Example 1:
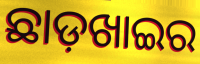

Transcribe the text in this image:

ଛାଡ଼ଖାଇର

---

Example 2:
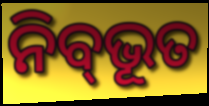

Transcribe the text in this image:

ନିବ୍‌ଭୂତ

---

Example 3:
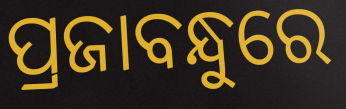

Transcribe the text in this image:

ପ୍ରଜାବନ୍ଧୁରେ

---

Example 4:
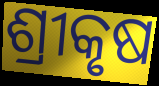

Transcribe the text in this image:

ଶ୍ରୀକୃଷ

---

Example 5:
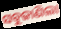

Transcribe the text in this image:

ସବୁଜାଣିଲା